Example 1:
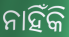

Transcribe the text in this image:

ନାହିଁକି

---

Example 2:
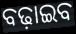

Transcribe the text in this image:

ବଢ଼ାଇବ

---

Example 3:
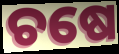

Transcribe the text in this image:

ଚଷେ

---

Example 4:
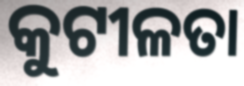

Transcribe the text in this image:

କୁଟୀଳତା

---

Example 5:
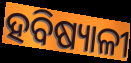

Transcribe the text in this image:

ହବିଷ୍ୟାଳୀ